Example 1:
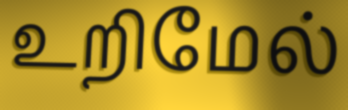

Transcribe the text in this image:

உறிமேல்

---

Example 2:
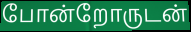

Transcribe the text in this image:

போன்றோருடன்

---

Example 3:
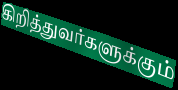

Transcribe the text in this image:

கிறித்துவர்களுக்கும்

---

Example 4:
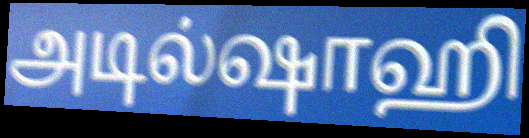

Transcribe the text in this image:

அடில்ஷாஹி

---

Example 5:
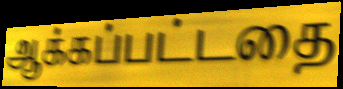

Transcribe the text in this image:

ஆக்கப்பட்டதை